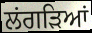
ਲਂਗੜਿਆਂ